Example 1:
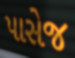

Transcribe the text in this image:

પાસેજ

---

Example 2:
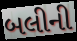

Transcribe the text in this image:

બલીની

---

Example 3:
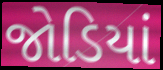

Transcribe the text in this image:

જોડિયાં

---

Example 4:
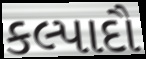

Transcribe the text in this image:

કલ્પાદૌ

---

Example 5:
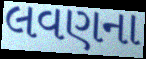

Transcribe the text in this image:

લવણના